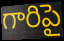
గారిపై